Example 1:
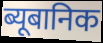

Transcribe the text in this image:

ब्यूबानिक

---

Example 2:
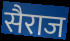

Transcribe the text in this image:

सैराज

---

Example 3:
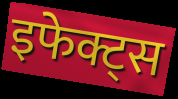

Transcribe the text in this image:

इफेक्ट्स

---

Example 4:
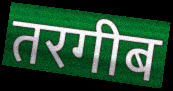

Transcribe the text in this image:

तरगीब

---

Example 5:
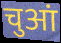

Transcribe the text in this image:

चुआं